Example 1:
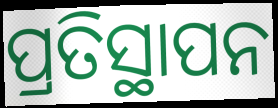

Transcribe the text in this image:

ପ୍ରତିସ୍ଥାପନ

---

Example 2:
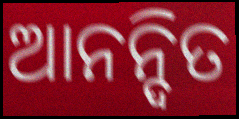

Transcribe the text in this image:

ଆନନ୍ଦିତ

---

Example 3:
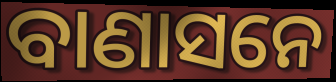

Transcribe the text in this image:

ବାଣାସନେ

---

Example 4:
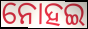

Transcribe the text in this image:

ନୋହଇ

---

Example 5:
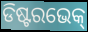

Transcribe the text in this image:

ଡିଷ୍ଟରଭେକ୍